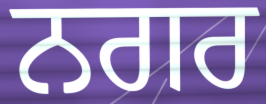
ਨਗਰ